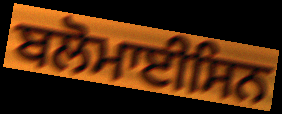
ਬਲੋਮਾਈਸਿਨ